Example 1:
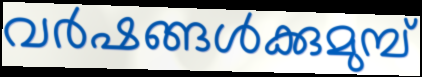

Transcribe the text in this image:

വർഷങ്ങൾക്കുമുമ്പ്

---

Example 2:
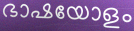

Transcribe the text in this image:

ഭാഷയോളം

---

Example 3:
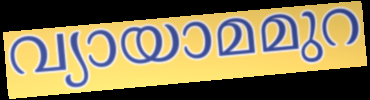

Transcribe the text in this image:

വ്യായാമമുറ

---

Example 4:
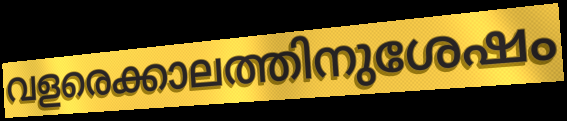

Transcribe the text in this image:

വളരെക്കാലത്തിനുശേഷം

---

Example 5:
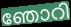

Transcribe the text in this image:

ഞോറി